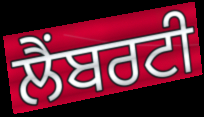
ਲੈਂਬਰਟੀ